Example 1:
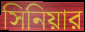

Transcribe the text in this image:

সিনিয়ার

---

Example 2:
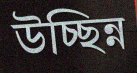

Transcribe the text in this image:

উচ্ছিন্ন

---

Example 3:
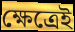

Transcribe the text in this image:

ক্ষেত্রেই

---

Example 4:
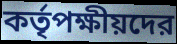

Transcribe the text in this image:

কর্তৃপক্ষীয়দের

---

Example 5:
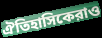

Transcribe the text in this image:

ঐতিহাসিকেরাও